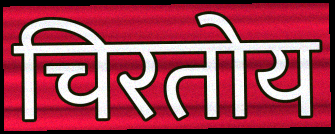
चिरतोय